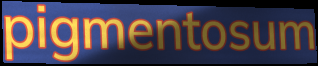
pigmentosum